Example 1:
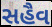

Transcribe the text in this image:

સહૈવ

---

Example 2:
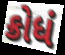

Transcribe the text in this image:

ક્રોધં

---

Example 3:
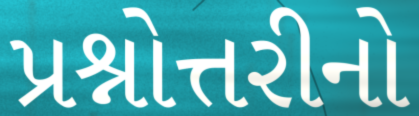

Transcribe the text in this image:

પ્રશ્નોત્તરીનો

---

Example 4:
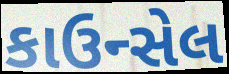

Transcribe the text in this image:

કાઉન્સેલ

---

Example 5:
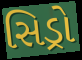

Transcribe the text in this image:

સિડ્રો